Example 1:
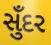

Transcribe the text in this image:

સુઁદર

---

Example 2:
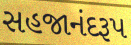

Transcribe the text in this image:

સહજાનંદરૂપ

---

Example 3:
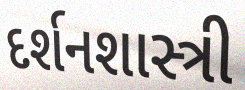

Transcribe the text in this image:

દર્શનશાસ્ત્રી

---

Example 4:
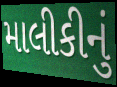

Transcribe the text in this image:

માલીકીનું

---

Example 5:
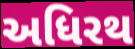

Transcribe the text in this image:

અધિરથ